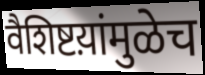
वैशिष्टय़ांमुळेच